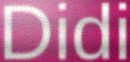
Didi